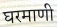
घरमाणी